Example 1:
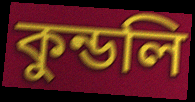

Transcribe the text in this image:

কুন্ডলি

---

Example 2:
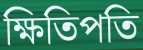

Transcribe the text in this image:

ক্ষিতিপতি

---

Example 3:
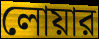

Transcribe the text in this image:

লোয়ার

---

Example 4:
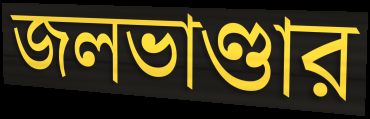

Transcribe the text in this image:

জলভাণ্ডার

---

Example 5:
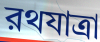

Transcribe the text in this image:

রথযাত্রা